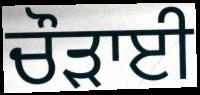
ਚੌੜਾਈ